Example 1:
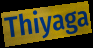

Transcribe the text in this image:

Thiyaga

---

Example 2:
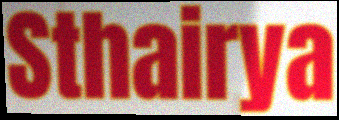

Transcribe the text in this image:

Sthairya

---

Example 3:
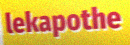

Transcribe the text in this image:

lekapothe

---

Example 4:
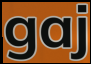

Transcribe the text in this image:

gaj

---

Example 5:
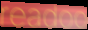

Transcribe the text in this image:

readoo